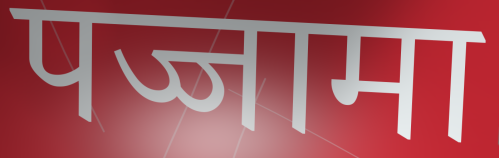
पज्जामा